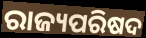
ରାଜ୍ୟପରିଷଦ